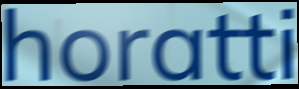
horatti